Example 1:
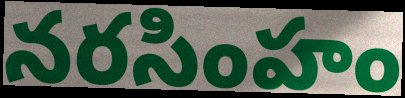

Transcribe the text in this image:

నరసింహం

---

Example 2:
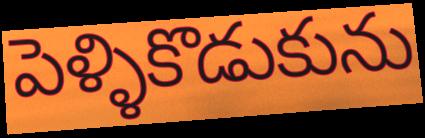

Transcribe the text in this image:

పెళ్ళికొడుకును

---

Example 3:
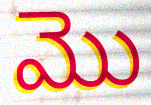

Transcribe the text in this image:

మొ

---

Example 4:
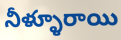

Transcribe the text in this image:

నీళ్ళూరాయి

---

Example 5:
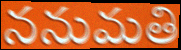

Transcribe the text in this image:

ననుమతి